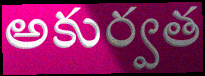
అకుర్వత